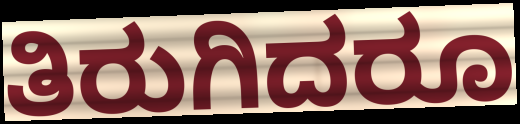
ತಿರುಗಿದರೂ